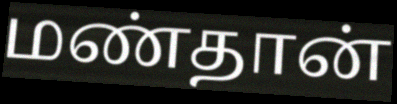
மண்தான்